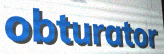
obturator